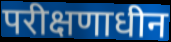
परीक्षणाधीन